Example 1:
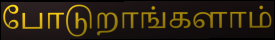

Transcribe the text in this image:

போடுறாங்களாம்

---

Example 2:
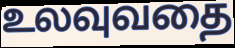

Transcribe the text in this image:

உலவுவதை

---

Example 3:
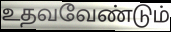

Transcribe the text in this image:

உதவவேண்டும்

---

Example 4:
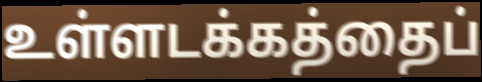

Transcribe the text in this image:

உள்ளடக்கத்தைப்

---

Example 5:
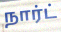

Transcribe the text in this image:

நார்ட்